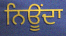
ਨਿਊਂਦਾ